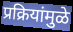
प्रक्रियांमुळे